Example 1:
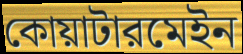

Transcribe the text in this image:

কোয়াটারমেইন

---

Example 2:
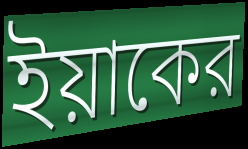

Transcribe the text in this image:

ইয়াকের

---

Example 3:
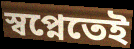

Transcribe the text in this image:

স্বপ্নেতেই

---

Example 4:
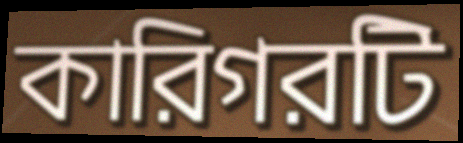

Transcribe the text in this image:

কারিগরটি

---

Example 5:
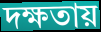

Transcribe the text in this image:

দক্ষতায়